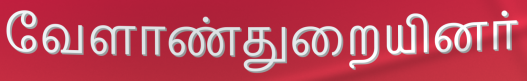
வேளாண்துறையினர்